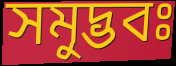
সমুদ্ভবঃ